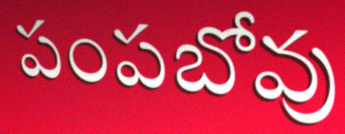
పంపబోవు